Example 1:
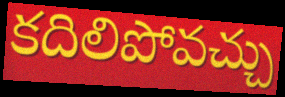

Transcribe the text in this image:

కదిలిపోవచ్చు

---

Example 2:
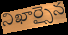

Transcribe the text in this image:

నిఖార్సైన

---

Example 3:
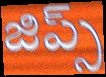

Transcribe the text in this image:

జిప్స్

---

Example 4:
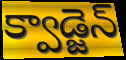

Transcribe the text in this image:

క్వాడ్జెన్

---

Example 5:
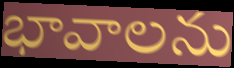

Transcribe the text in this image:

భావాలను